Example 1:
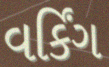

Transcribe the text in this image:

વર્કિંગ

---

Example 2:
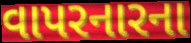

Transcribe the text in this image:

વાપરનારના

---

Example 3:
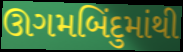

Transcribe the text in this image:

ઊગમબિંદુમાંથી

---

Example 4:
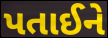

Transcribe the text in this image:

પતાઈને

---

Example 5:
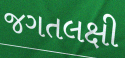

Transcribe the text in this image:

જગતલક્ષી